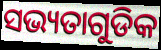
ସଭ୍ୟତାଗୁଡିକ